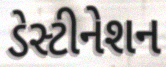
ડેસ્ટીનેશન